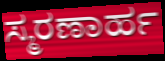
ಸ್ಮರಣಾರ್ಹ